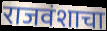
राजवंशाचा